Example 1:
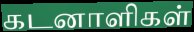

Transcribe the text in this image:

கடனாளிகள்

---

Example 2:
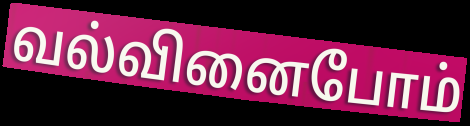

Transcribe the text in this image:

வல்வினைபோம்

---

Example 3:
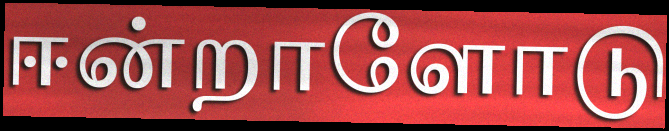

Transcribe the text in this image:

ஈன்றாளோடு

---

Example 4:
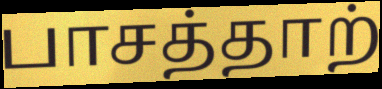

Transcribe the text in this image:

பாசத்தாற்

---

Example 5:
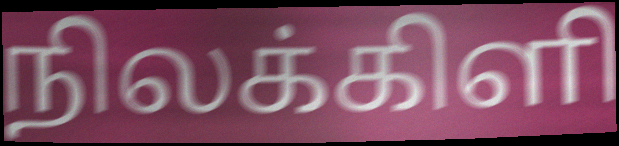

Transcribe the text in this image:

நிலக்கிளி